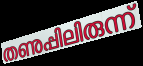
തണുപ്പിലിരുന്ന്